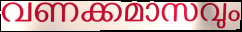
വണക്കമാസവും